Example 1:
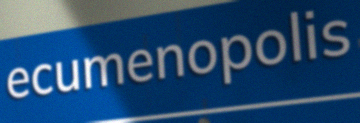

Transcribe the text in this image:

ecumenopolis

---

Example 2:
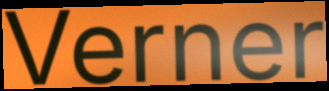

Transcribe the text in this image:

Verner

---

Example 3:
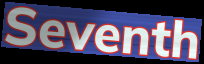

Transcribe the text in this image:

Seventh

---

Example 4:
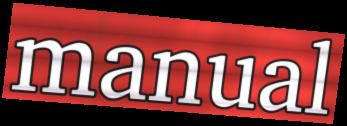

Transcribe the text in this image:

manual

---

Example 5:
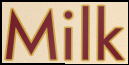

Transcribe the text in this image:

Milk